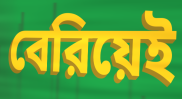
বেরিয়েই